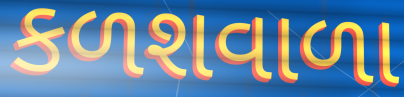
કળશવાળા